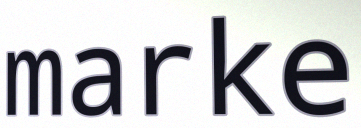
marke